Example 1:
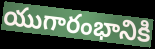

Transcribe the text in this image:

యుగారంభానికి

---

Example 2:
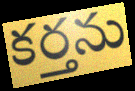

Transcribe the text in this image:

కర్తను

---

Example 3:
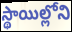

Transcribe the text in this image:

స్థాయిల్లోని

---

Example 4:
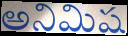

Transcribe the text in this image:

అనిమిష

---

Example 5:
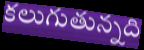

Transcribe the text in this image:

కలుగుతున్నది